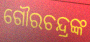
ଗୌରଚନ୍ଦ୍ରଙ୍କ